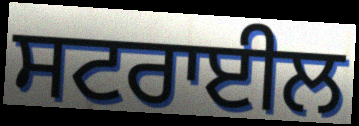
ਸਟਰਾਈਲ